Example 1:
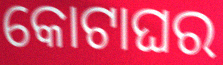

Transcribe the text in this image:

କୋଟାଘର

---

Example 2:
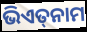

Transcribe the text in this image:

ଭିଏତ୍‌ନାମ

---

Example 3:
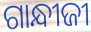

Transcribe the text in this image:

ଗାନ୍ଧୀଜୀ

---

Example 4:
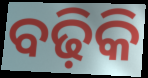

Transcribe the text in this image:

ବଢ଼ିକି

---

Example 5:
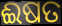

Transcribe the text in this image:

ଈଷତ